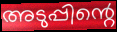
അടുപ്പിന്റെ